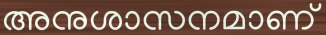
അനുശാസനമാണ്